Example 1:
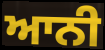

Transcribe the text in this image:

ਆਨੀ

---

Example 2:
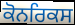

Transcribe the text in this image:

ਕੋਨਰਿਕਸ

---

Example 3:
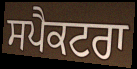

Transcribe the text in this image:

ਸਪੈਕਟਰਾ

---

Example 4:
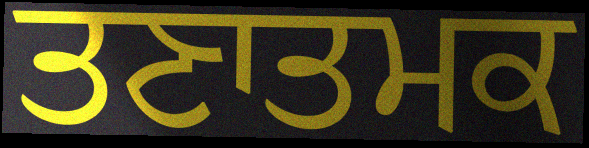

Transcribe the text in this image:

ਤਣਾਤਮਕ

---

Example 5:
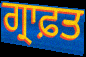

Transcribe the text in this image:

ਗ੍ਰਾਫ਼ਤ